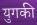
युगकी